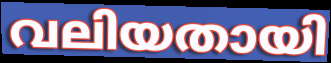
വലിയതായി